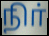
நிர்